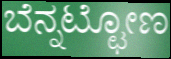
ಬೆನ್ನಟ್ಟೋಣ